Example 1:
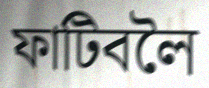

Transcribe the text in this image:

ফাটিবলৈ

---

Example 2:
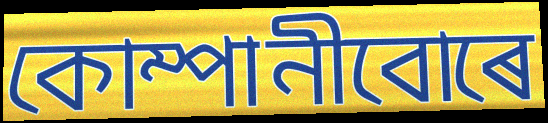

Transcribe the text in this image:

কোম্পানীবোৰে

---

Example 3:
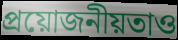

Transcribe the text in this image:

প্ৰয়োজনীয়তাও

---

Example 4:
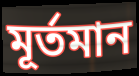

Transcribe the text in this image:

মূৰ্তমান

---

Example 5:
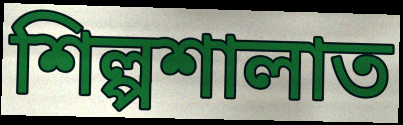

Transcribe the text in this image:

শিল্পশালাত